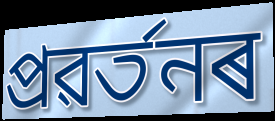
প্ৰৱৰ্তনৰ